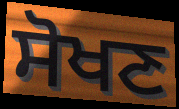
ਸੋਖਣ